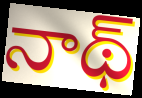
నాథ్